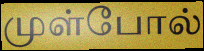
முள்போல்